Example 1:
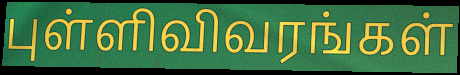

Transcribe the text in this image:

புள்ளிவிவரங்கள்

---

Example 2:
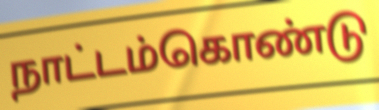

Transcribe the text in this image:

நாட்டம்கொண்டு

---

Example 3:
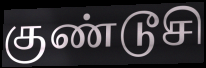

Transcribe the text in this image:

குண்டூசி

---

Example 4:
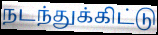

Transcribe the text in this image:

நடந்துக்கிட்டு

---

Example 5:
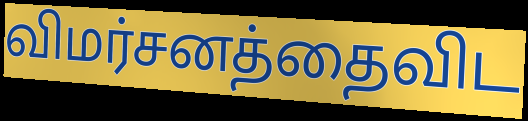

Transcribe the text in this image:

விமர்சனத்தைவிட